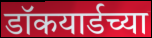
डॉकयार्डच्या